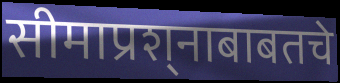
सीमाप्रश्नाबाबतचे